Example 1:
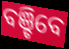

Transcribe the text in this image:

ବଞ୍ଚିବେ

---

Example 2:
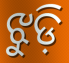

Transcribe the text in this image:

ଝୁଡ଼ି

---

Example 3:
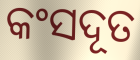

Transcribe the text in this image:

କଂସଦୂତ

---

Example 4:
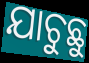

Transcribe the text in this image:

ଯାଚୁଛୁ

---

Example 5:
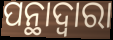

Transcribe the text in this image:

ପନ୍ଥାଦ୍ୱାରା